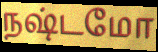
நஷ்டமோ